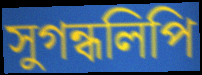
সুগন্ধলিপি